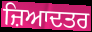
ਜ਼ਿਆਦਤਰ